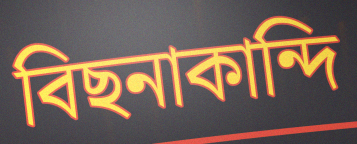
বিছনাকান্দি